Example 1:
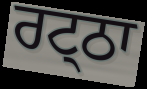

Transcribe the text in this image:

ਰਟ੍ਠਾ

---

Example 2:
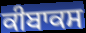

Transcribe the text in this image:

ਕੀਬਾਕਸ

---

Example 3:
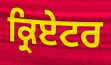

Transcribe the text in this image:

ਕ੍ਰਿਏਟਰ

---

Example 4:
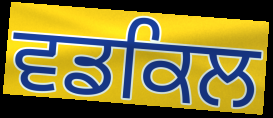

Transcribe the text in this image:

ਵਡਕਿਲ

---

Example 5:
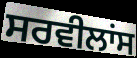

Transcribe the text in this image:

ਸਰਵੀਲਾਂਸ